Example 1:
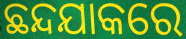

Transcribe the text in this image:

ଛନ୍ଦଯାକରେ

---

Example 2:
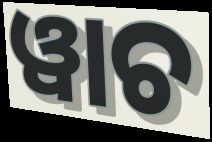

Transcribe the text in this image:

ୱାଚ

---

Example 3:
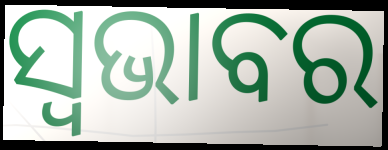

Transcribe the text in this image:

ସ୍ଵଭାବର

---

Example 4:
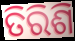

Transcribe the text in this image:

ତିରିଶି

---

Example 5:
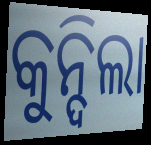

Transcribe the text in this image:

କୁନ୍ଦିଲା